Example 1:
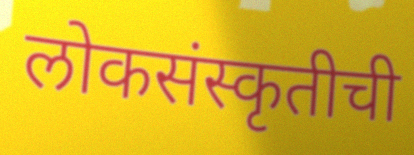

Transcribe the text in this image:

लोकसंस्कृतीची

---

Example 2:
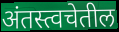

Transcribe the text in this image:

अंतस्त्वचेतील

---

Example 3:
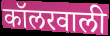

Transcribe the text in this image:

कॉलरवाली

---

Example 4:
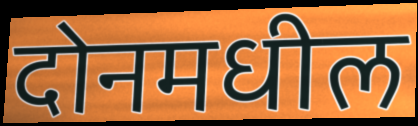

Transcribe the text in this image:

दोनमधील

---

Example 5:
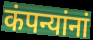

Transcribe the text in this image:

कंपन्यांनां